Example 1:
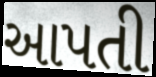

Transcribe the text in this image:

આપતી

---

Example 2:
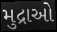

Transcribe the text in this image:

મુદ્રાઓ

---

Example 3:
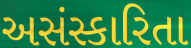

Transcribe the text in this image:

અસંસ્કારિતા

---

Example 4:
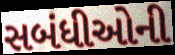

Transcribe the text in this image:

સબંધીઓની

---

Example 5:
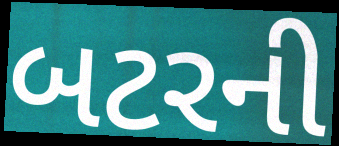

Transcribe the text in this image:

બટરની